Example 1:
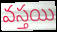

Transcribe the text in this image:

వస్తయి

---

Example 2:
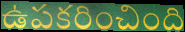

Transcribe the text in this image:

ఉపకరించింది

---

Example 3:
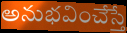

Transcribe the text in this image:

అనుభవించేస్తే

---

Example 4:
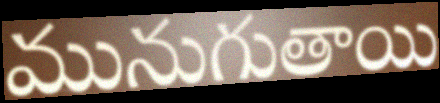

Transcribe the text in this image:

మునుగుతాయి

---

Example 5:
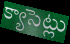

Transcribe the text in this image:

క్యాసెట్లు